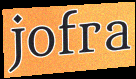
jofra